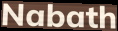
Nabath